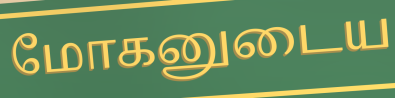
மோகனுடைய